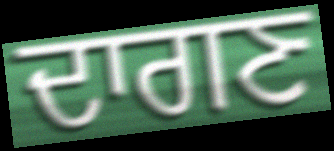
ਦਾਗਣ